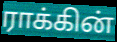
ராக்கின்